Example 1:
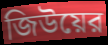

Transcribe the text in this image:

জিউয়ের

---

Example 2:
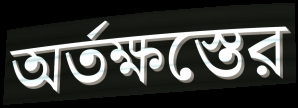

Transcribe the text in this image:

অর্তক্ষস্তের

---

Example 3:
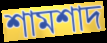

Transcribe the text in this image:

শামশাদ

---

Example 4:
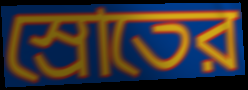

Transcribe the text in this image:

স্রোতের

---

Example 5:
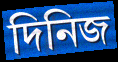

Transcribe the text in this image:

দিনিজ